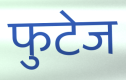
फुटेज